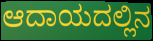
ಆದಾಯದಲ್ಲಿನ